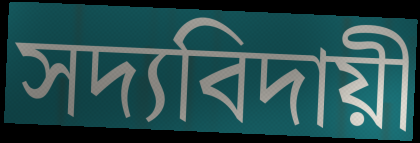
সদ্যবিদায়ী